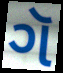
ગૅ